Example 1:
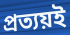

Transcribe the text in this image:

প্রত্যয়ই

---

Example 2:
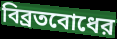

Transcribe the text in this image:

বিব্রতবোধের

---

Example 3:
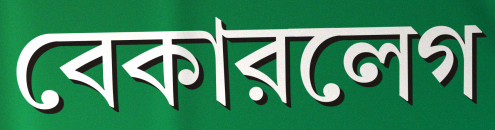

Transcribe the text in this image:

বেকারলেগ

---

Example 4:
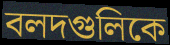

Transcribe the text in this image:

বলদগুলিকে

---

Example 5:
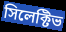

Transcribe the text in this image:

সিলেক্টিভ